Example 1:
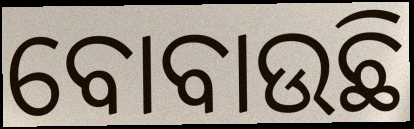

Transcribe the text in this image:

ବୋବାଉଛି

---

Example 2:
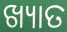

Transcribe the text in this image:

ଖ୍ୟାତ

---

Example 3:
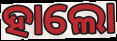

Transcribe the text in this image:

ହାଲୋ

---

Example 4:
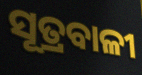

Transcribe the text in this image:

ସୂତ୍ରବାଳୀ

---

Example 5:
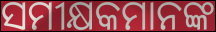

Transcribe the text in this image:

ସମୀକ୍ଷକମାନଙ୍କ